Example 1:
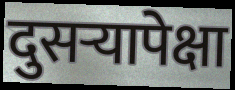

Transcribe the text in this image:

दुसऱ्यापेक्षा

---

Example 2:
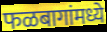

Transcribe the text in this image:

फळबागांमध्ये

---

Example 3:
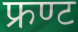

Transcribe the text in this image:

फ्रण्ट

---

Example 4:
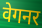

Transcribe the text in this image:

वेगनर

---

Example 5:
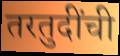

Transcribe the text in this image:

तरतुदींची